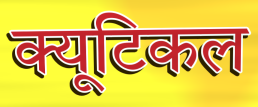
क्यूटिकल